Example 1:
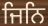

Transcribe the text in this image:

ਜਿਨਿ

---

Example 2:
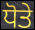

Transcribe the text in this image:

ਧੋਤੇ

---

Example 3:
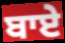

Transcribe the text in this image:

ਬਾਏ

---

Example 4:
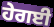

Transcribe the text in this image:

ਹੇਗਈ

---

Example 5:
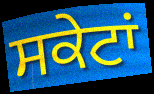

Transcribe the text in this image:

ਸਕੇਟਾਂ